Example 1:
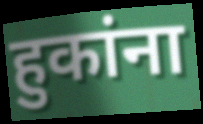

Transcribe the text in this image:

हुकांना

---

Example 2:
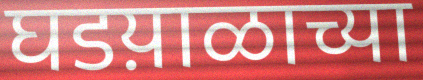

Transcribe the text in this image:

घडय़ाळाच्या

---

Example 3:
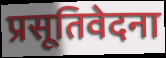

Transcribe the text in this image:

प्रसूतिवेदना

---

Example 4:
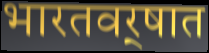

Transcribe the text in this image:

भारतवर्षात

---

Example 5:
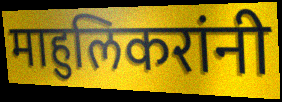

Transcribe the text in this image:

माहुलिकरांनी